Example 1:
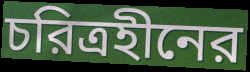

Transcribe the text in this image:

চরিত্রহীনের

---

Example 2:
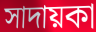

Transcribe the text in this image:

সাদায়কা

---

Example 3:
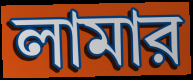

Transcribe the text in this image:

লামার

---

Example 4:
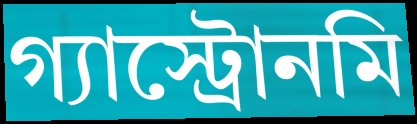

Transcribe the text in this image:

গ্যাস্ট্রোনমি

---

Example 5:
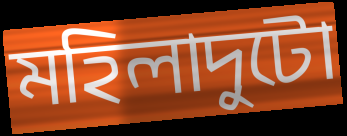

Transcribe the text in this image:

মহিলাদুটো